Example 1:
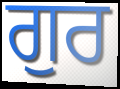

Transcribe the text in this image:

ਗੁਰ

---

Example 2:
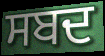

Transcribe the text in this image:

ਸਬਦ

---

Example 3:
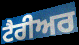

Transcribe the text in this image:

ਟੈਰੀਅਰ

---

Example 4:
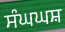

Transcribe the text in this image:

ਸੰਘਘਸ਼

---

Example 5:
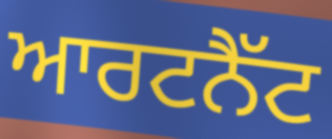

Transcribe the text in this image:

ਆਰਟਨੈੱਟ